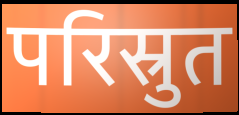
परिस्रुत